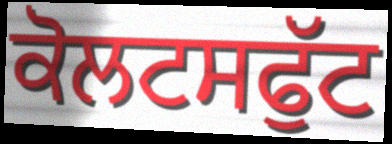
ਕੋਲਟਸਫੁੱਟ